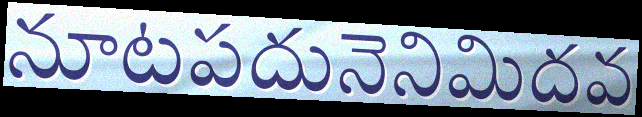
నూటపదునెనిమిదవ